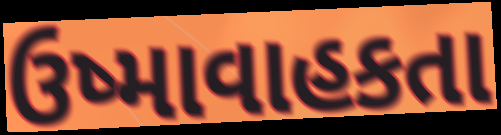
ઉષ્માવાહકતા